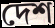
দেশ